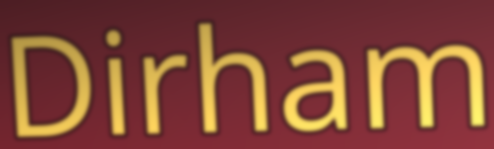
Dirham